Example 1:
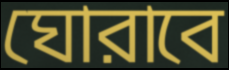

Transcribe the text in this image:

ঘোরাবে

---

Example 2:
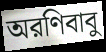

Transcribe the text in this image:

অরণিবাবু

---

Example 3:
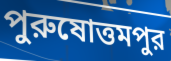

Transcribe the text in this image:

পুরুষোত্তমপুর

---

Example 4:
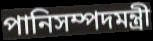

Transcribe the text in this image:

পানিসম্পদমন্ত্রী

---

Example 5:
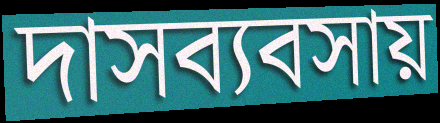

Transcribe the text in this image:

দাসব্যবসায়